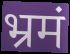
भ्रमं